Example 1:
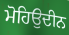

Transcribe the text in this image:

ਮੋਹਿਉਦੀਨ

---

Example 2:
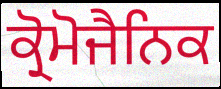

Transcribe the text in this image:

ਕ੍ਰੋਮੋਜੈਨਿਕ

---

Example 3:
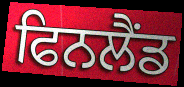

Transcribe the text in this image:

ਫਿਨਲੈਂਡ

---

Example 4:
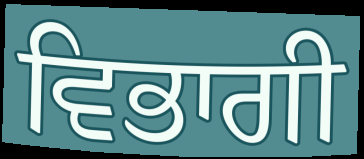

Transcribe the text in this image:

ਵਿਭਾਗੀ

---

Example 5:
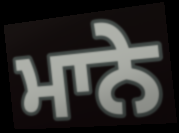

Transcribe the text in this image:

ਮਾਨੇ